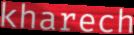
kharech